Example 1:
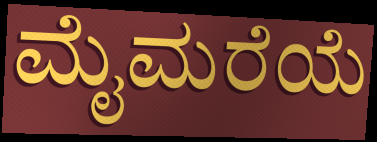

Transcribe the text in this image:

ಮೈಮರೆಯೆ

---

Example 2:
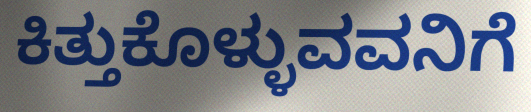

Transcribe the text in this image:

ಕಿತ್ತುಕೊಳ್ಳುವವನಿಗೆ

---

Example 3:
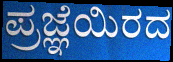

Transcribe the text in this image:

ಪ್ರಜ್ಞೆಯಿರದ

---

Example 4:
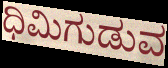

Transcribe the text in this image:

ಧಿಮಿಗುಡುವ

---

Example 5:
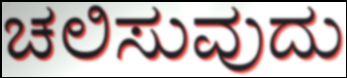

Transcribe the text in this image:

ಚಲಿಸುವುದು